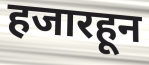
हजारहून